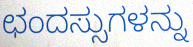
ಛಂದಸ್ಸುಗಳನ್ನು